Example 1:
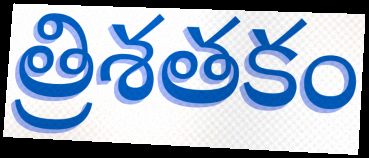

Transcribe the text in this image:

త్రిశతకం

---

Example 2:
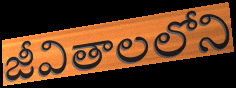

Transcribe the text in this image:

జీవితాలలోని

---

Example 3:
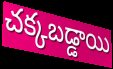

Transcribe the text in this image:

చక్కబడ్డాయి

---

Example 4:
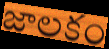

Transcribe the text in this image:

జాలకం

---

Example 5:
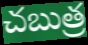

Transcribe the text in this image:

చబుత్ర